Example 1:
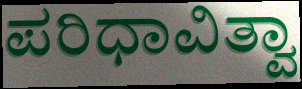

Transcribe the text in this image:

ಪರಿಧಾವಿತ್ವಾ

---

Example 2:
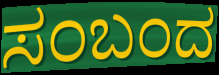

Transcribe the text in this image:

ಸಂಬಂದ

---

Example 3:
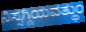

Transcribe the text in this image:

ನಿಸ್ಸಗ್ಗಿಯವತ್ಥುಂ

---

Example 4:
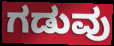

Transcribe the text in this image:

ಗಡುವು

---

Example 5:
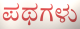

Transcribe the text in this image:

ಪಥಗಳು